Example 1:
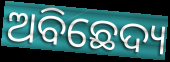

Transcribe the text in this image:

ଅବିଛେଦ୍ୟ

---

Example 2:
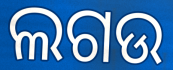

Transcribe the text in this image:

ଲଗଉ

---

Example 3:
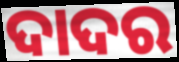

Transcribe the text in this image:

ଦାଦର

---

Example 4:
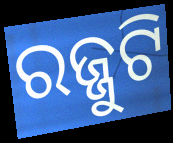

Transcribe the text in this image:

ରଜ୍ଜୁଟି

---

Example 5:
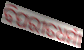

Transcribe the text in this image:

ବିପରୀତଧର୍ମୀ